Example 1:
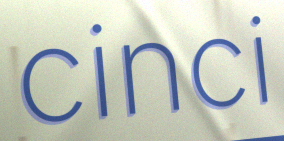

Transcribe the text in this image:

cinci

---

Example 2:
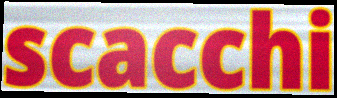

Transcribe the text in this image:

scacchi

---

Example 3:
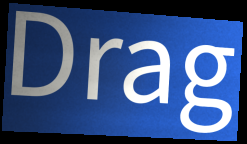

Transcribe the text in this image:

Drag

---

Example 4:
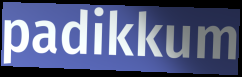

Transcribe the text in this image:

padikkum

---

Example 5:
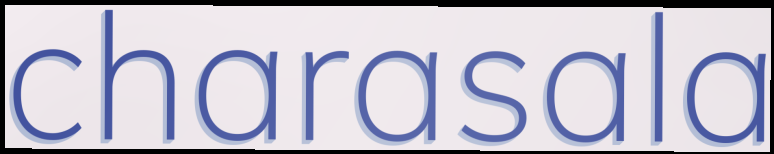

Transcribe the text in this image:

charasala